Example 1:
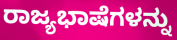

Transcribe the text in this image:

ರಾಜ್ಯಭಾಷೆಗಳನ್ನು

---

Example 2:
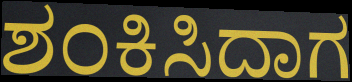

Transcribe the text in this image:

ಶಂಕಿಸಿದಾಗ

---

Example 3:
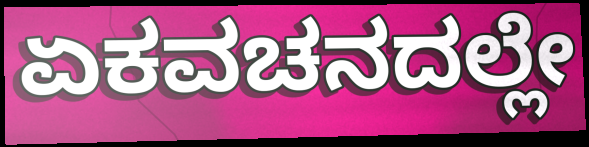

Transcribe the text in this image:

ಏಕವಚನದಲ್ಲೇ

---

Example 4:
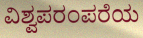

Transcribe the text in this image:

ವಿಶ್ವಪರಂಪರೆಯ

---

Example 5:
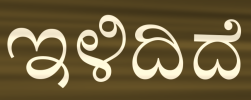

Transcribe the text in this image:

ಇಳಿದಿದೆ